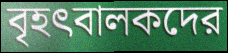
বৃহৎবালকদের